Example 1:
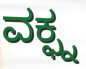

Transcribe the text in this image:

ವಕ್ಫ್ನ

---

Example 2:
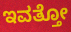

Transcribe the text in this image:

ಇವತ್ತೋ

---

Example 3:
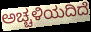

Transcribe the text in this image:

ಅಚ್ಚಳಿಯದಿದೆ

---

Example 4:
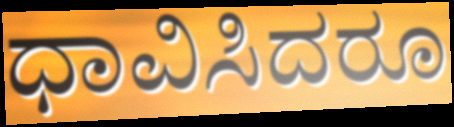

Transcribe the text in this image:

ಧಾವಿಸಿದರೂ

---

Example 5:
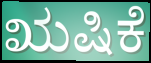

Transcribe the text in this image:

ಋಷಿಕೆ